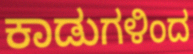
ಕಾಡುಗಳಿಂದ